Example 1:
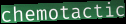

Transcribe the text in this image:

chemotactic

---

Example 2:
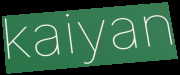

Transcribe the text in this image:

kaiyan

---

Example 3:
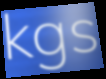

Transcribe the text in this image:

kgs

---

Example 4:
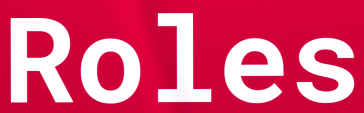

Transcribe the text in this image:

Roles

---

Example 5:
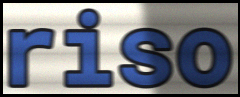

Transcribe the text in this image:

riso